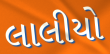
લાલીયો